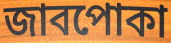
জাবপোকা